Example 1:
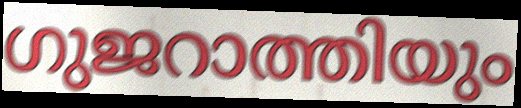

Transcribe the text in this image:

ഗുജറാത്തിയും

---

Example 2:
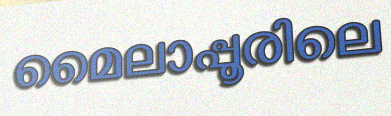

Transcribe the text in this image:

മൈലാപ്പൂരിലെ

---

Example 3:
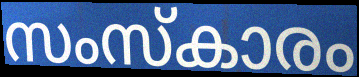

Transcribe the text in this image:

സംസ്കാരം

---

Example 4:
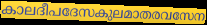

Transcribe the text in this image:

കാലദീപദേസകുലമാതരവസേന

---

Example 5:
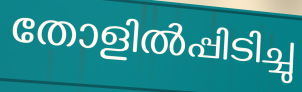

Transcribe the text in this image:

തോളിൽപ്പിടിച്ചു